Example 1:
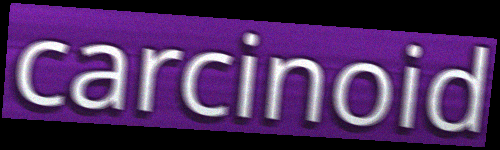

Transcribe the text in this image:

carcinoid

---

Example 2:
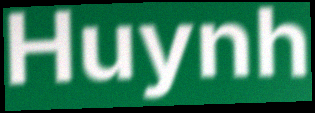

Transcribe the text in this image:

Huynh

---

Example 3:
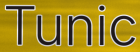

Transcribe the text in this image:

Tunic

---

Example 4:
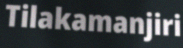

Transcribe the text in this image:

Tilakamanjiri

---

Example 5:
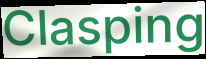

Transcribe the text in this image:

Clasping